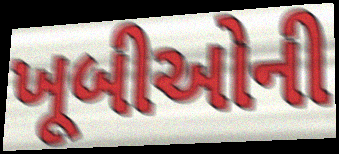
ખૂબીઓની